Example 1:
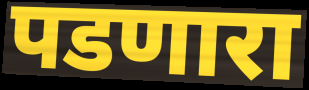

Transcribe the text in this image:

पडणारा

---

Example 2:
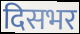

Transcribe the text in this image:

दिसभर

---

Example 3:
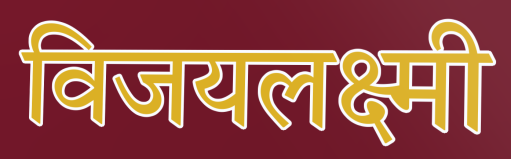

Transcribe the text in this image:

विजयलक्ष्मी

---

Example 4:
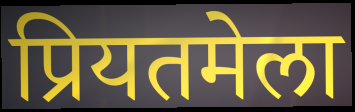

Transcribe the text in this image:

प्रियतमेला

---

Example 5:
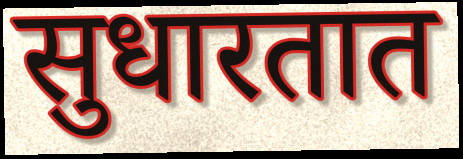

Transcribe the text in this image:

सुधारतात